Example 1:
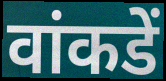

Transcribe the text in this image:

वांकडें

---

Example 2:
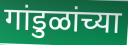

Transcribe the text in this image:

गांडुळांच्या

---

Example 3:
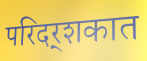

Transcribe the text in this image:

परिदर्शकात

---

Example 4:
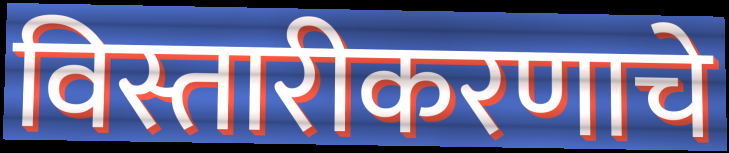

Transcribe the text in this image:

विस्तारीकरणाचे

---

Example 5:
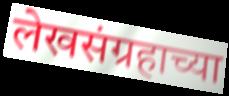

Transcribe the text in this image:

लेखसंग्रहाच्या